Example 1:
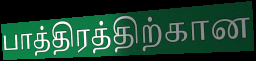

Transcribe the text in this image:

பாத்திரத்திற்கான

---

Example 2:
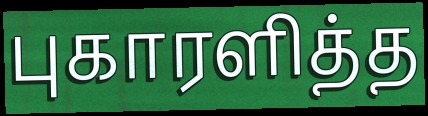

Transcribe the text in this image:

புகாரளித்த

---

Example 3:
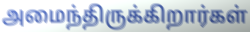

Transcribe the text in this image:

அமைந்திருக்கிறார்கள்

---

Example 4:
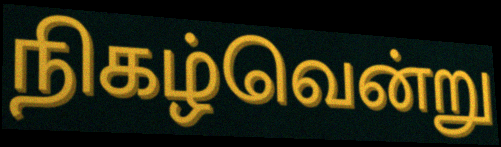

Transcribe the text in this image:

நிகழ்வென்று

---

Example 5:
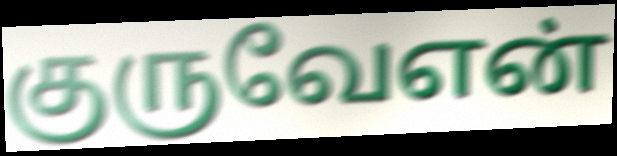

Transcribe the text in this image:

குருவேஎன்